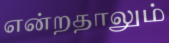
என்றதாலும்